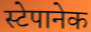
स्टेपानेक